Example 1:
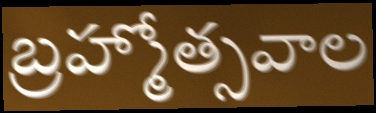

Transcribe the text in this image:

బ్రహ్మోత్సవాల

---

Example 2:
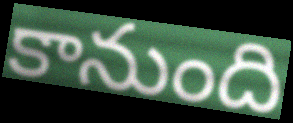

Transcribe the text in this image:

కానుంది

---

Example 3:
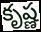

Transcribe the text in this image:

కృష్ణ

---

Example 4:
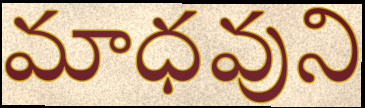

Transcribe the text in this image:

మాధవుని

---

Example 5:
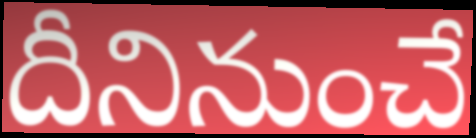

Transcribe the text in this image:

దీనినుంచే